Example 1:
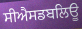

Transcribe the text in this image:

ਸੀਐਸਡਬਲਿਊ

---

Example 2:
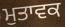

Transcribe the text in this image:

ਮੁਤਾਵਕ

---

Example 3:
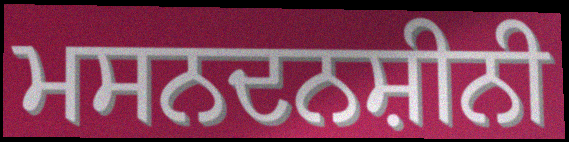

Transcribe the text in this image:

ਮਸਨਦਨਸ਼ੀਨੀ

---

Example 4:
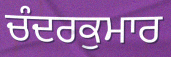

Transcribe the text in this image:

ਚੰਦਰਕੁਮਾਰ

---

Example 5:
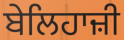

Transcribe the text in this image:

ਬੇਲਿਹਾਜ਼ੀ